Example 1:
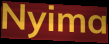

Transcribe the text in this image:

Nyima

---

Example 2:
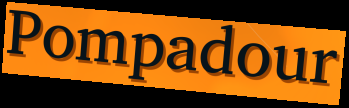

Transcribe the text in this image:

Pompadour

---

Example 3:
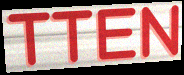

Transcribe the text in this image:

TTEN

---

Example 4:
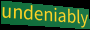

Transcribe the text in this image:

undeniably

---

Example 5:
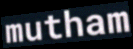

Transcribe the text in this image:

mutham